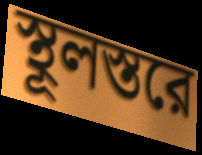
স্থূলস্তরে